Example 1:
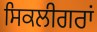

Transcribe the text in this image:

ਸਿਕਲੀਗਰਾਂ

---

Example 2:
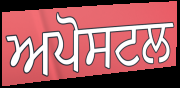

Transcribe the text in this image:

ਅਪੋਸਟਲ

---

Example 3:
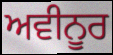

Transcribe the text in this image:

ਅਵੀਨੂਰ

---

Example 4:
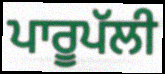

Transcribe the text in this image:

ਪਾਰੂਪੱਲੀ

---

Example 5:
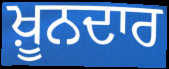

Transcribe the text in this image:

ਖ਼ੂਨਦਾਰ